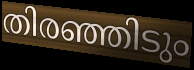
തിരഞ്ഞിടും